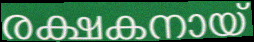
രക്ഷകനായ്